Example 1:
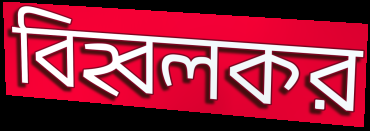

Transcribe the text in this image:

বিহ্বলকর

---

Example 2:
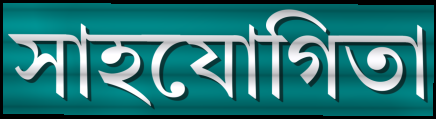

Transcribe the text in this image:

সাহযোগিতা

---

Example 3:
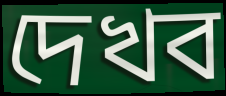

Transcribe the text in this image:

দেখব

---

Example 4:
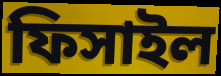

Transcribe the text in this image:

ফিসাইল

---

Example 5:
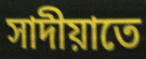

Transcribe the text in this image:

সাদীয়াতে